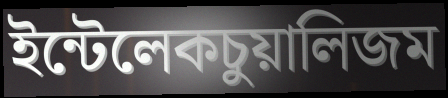
ইন্টেলেকচুয়ালিজম